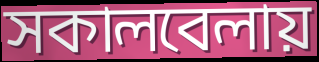
সকালবেলায়